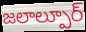
జలాల్పూర్